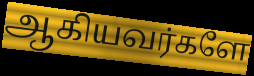
ஆகியவர்களே